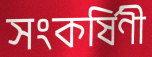
সংকর্ষিণী